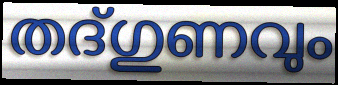
തദ്ഗുണവും